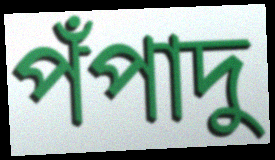
পঁপাদু